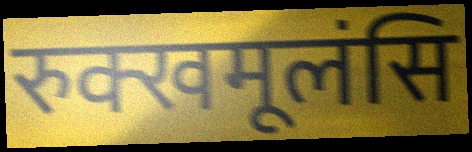
रुक्खमूलंसि